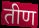
तीण